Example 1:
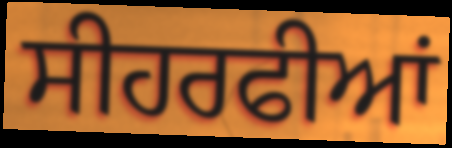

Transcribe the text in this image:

ਸੀਹਰਫੀਆਂ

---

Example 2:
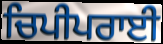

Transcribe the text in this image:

ਚਿਪੀਪਰਾਈ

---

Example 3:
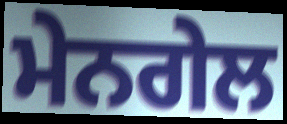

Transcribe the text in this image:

ਮੇਨਗੇਲ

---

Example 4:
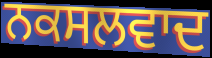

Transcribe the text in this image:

ਨਕਸਲਵਾਦ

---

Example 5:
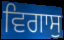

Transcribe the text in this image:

ਵਿਗਾਸੁ